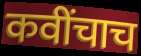
कवींचाच